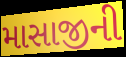
માસાજીની